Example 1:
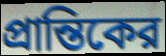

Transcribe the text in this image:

প্রান্তিকের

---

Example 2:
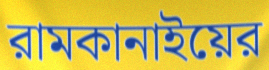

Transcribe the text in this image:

রামকানাইয়ের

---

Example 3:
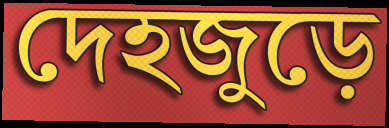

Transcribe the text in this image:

দেহজুড়ে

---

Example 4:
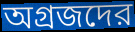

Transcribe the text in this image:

অগ্রজদের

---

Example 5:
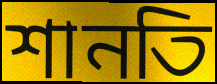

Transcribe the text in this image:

শানতি